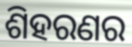
ଶିହରଣର